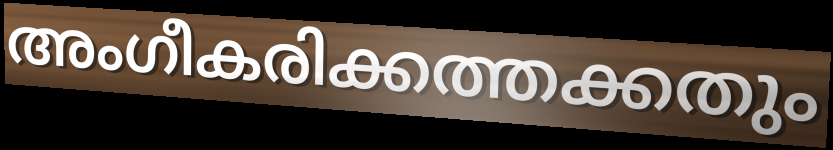
അംഗീകരിക്കത്തക്കതും